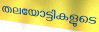
തലയോട്ടികളുടെ